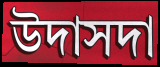
উদাসদা